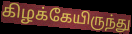
கிழக்கேயிருந்து